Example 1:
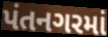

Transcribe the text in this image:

પંતનગરમાં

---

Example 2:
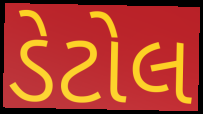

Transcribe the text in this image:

ડેટોલ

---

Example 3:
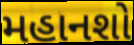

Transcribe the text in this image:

મહાનશો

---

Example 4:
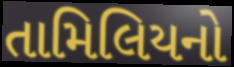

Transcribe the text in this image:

તામિલિયનો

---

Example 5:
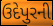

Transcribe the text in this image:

ઉદેપુરની